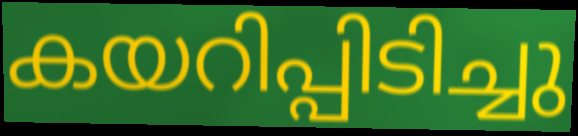
കയറിപ്പിടിച്ചു